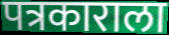
पत्रकाराला